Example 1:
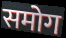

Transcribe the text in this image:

समोग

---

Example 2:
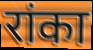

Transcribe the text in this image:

रांका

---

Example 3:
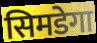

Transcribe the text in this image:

सिमडेगा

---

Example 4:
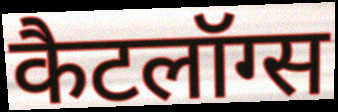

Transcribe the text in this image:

कैटलॉग्स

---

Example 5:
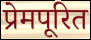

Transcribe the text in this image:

प्रेमपूरित